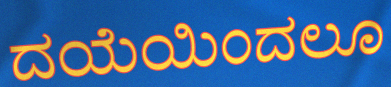
ದಯೆಯಿಂದಲೂ